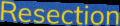
Resection